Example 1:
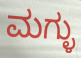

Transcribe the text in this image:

ಮಗ್ಳು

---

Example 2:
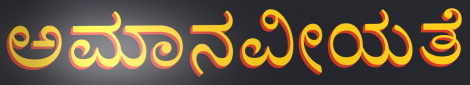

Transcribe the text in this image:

ಅಮಾನವೀಯತೆ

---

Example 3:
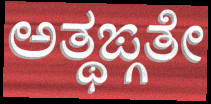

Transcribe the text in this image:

ಅತ್ಥಙ್ಗತೇ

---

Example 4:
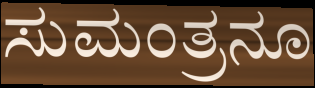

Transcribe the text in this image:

ಸುಮಂತ್ರನೂ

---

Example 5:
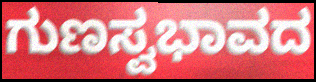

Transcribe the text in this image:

ಗುಣಸ್ವಭಾವದ